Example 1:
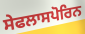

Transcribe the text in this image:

ਸੇਫਲਾਸਪੋਰਿਨ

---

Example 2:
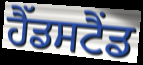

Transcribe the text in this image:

ਹੈੱਡਸਟੈਂਡ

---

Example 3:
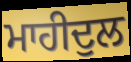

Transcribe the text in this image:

ਮਾਹੀਦੁਲ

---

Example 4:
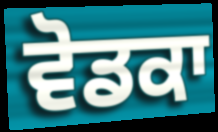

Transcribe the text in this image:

ਵੋਡਕਾ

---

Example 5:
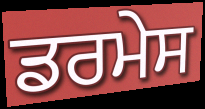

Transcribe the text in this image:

ਡਰਮੇਸ